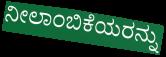
ನೀಲಾಂಬಿಕೆಯರನ್ನು